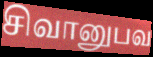
சிவானுபவ